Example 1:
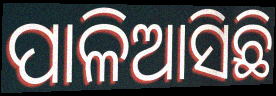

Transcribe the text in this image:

ପାଳିଆସିଛି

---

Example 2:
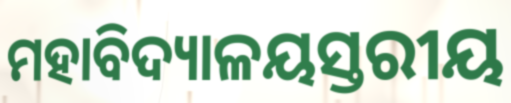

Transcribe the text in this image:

ମହାବିଦ୍ୟାଳୟସ୍ତରୀୟ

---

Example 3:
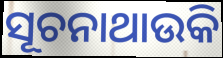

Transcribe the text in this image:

ସୂଚନାଥାଉକି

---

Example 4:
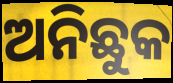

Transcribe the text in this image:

ଅନିଛୁକ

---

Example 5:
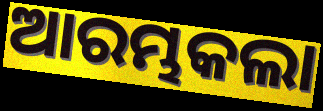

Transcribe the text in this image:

ଆରମ୍ଭକଲା